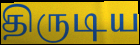
திருடிய